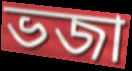
ভজা